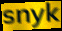
snyk